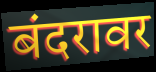
बंदरावर